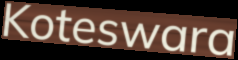
Koteswara